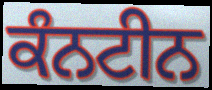
ਕੰਨਟੀਨ